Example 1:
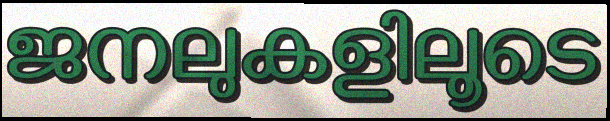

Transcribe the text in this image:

ജനലുകളിലൂടെ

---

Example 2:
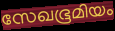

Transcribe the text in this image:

സേഖഭൂമിയം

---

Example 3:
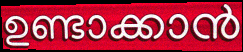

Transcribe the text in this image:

ഉണ്ടാക്കാൻ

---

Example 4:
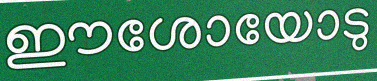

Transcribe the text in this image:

ഈശോയോടു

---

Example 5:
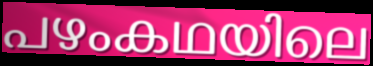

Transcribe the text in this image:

പഴംകഥയിലെ